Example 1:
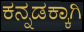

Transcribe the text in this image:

ಕನ್ನಡಕ್ಕಾಗಿ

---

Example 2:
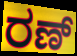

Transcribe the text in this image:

ರಣ್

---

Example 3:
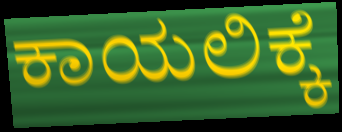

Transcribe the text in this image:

ಕಾಯಲಿಕ್ಕೆ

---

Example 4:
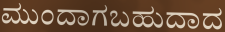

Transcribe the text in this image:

ಮುಂದಾಗಬಹುದಾದ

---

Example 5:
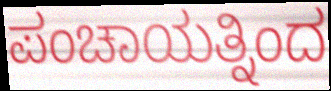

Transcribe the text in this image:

ಪಂಚಾಯತ್ನಿಂದ